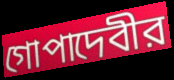
গোপাদেবীর